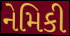
નેમિકી